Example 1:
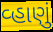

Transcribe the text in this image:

વ્હાણું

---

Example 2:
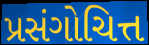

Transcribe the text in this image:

પ્રસંગોચિત્ત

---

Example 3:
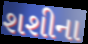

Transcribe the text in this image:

શશીના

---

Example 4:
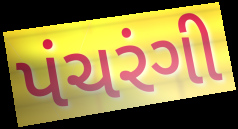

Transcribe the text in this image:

પંચરંગી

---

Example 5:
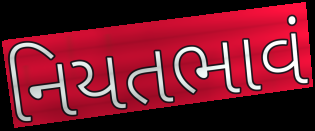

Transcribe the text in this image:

નિયતભાવં